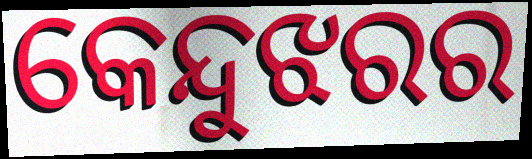
କେନ୍ଦୁଝରର